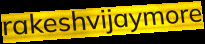
rakeshvijaymore